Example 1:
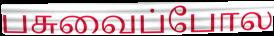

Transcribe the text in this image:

பசுவைப்போல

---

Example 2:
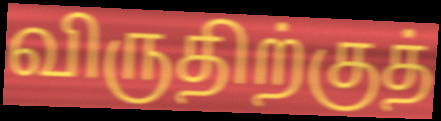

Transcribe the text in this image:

விருதிற்குத்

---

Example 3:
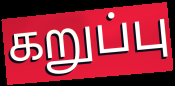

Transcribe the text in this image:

கறுப்பு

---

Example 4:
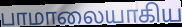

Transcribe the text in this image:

பாமாலையாகிய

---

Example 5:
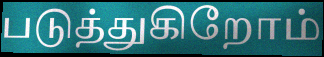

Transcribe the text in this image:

படுத்துகிறோம்